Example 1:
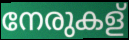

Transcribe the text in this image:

നേരുകള്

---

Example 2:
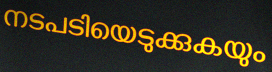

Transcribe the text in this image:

നടപടിയെടുക്കുകയും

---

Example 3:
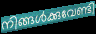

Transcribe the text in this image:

നിങ്ങൾക്കുവേണ്ടി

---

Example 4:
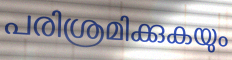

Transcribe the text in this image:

പരിശ്രമിക്കുകയും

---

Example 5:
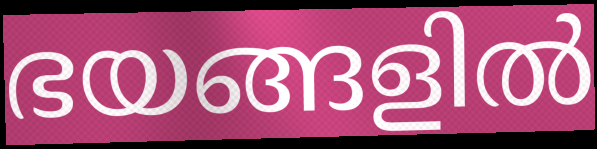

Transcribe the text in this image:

ഭയങ്ങളിൽ